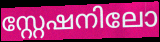
സ്റ്റേഷനിലോ